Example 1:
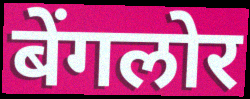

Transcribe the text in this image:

बेंगलोर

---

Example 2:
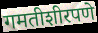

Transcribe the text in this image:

गमतीशीरपणे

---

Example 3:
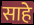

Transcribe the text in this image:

साहे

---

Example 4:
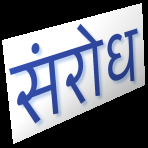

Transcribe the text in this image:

संरोध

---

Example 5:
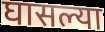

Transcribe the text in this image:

घासल्या